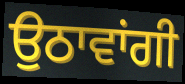
ਉਠਾਵਾਂਗੀ